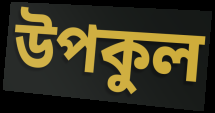
উপকুল